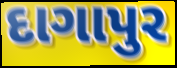
દાગાપુર